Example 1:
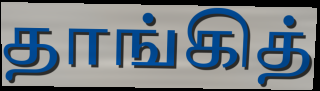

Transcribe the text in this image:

தாங்கித்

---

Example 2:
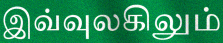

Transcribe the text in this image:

இவ்வுலகிலும்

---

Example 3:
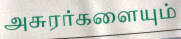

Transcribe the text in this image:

அசுரர்களையும்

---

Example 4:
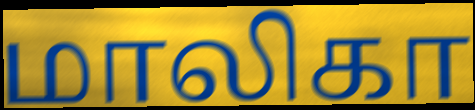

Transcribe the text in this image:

மாலிகா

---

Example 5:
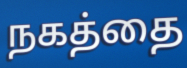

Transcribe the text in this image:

நகத்தை